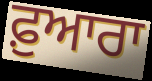
ਫ਼ੁਆਰਾ